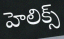
హెలిక్స్